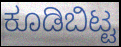
ಕೂಡಿಬಿಟ್ಟ